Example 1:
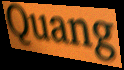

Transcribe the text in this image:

Quang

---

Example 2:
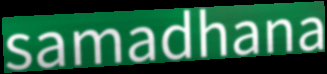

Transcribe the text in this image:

samadhana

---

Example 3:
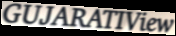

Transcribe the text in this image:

GUJARATIView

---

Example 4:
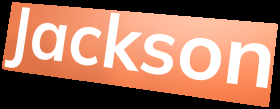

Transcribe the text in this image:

Jackson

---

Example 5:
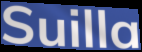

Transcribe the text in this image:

Suilla